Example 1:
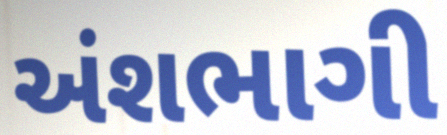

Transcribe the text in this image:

અંશભાગી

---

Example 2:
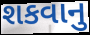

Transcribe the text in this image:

શકવાનુ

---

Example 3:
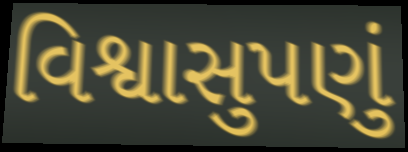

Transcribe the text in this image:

વિશ્વાસુપણું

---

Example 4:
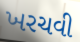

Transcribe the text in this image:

ખરચવી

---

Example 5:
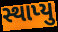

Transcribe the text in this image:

સ્થાપ્યુ